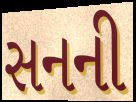
સનની